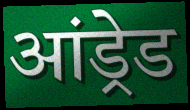
आंड्रेड